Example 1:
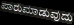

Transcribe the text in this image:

ಪಾರುಮಾಡುವುದು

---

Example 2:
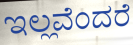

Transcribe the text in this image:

ಇಲ್ಲವೆಂದರೆ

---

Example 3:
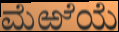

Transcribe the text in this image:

ಮೆಱೆಯೆ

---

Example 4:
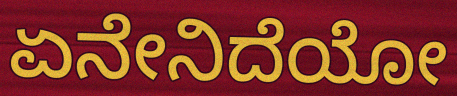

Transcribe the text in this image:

ಏನೇನಿದೆಯೋ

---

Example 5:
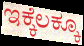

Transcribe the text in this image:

ಇಕ್ಕೆಲಕ್ಕೂ